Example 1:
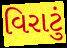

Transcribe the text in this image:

વિરાટું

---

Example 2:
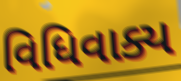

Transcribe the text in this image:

વિધિવાક્ય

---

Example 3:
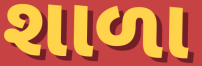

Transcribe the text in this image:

શાળા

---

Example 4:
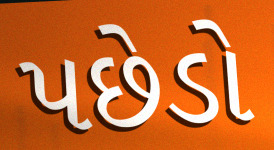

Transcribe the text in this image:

પછેડો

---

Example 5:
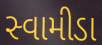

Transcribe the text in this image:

સ્વામીડા